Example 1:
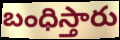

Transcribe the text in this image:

బంధిస్తారు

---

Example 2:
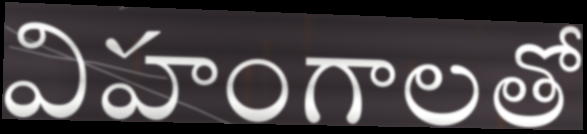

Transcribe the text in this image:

విహంగాలతో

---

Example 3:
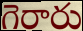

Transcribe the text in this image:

గెరారు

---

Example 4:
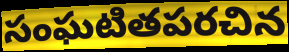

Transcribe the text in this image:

సంఘటితపరచిన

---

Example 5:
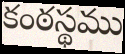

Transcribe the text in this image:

కంఠస్థము